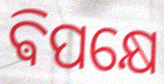
ଵିପକ୍ଷେ